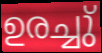
ഉരച്ചു്